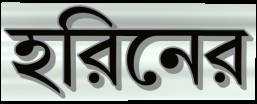
হরিনের